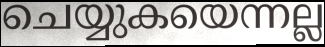
ചെയ്യുകയെന്നല്ല